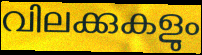
വിലക്കുകളും